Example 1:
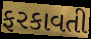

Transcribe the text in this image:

ફરકાવતી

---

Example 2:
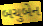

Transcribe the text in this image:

બચુબેન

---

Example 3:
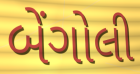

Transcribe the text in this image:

બેંગોલી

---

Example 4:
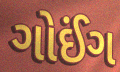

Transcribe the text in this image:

ગોઈંગ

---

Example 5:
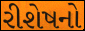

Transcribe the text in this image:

રીશેષનો